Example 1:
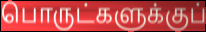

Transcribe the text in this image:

பொருட்களுக்குப்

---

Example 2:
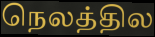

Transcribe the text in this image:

நெலத்தில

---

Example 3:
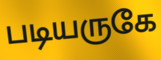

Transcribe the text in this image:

படியருகே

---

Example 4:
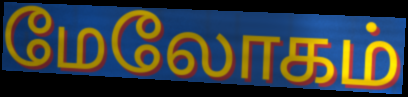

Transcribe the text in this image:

மேலோகம்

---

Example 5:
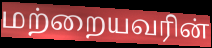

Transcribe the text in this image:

மற்றையவரின்